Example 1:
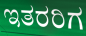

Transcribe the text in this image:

ಇತರರಿಗ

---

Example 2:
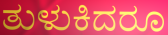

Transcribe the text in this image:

ತುಳುಕಿದರೂ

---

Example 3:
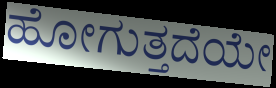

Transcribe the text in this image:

ಹೋಗುತ್ತದೆಯೇ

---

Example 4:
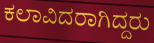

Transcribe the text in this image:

ಕಲಾವಿದರಾಗಿದ್ದರು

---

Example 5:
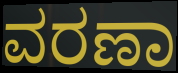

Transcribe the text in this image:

ವರಣಾ